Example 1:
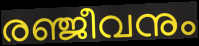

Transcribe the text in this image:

രഞ്ജീവനും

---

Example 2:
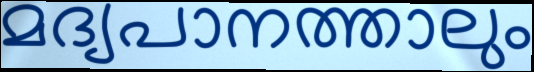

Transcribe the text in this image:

മദ്യപാനത്താലും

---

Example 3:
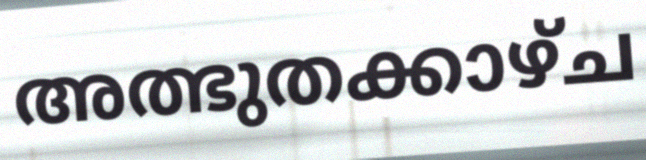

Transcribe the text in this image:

അത്ഭുതക്കാഴ്ച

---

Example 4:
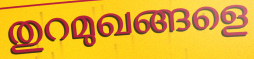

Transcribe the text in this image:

തുറമുഖങ്ങളെ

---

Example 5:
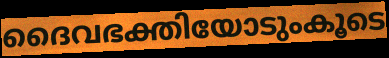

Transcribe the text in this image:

ദൈവഭക്തിയോടുംകൂടെ